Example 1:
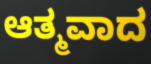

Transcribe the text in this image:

ಆತ್ಮವಾದ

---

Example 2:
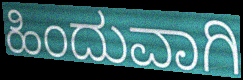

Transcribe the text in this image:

ಹಿಂದುವಾಗಿ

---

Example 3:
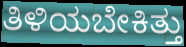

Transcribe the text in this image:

ತಿಳಿಯಬೇಕಿತ್ತು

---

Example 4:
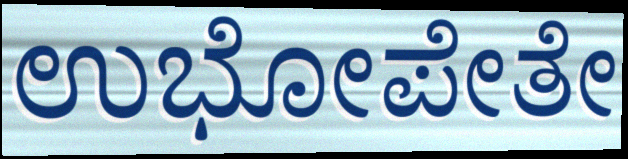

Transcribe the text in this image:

ಉಭೋಪೇತೇ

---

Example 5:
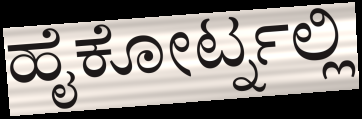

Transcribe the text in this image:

ಹೈಕೋರ್ಟ್ನಲ್ಲಿ